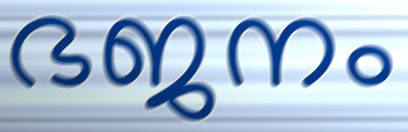
ഭജനം